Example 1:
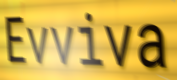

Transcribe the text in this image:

Evviva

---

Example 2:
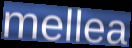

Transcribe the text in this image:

mellea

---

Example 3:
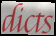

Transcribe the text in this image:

dicts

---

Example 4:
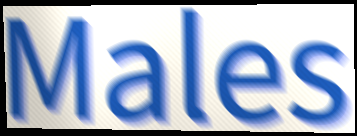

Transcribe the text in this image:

Males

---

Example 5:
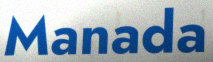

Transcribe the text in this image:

Manada